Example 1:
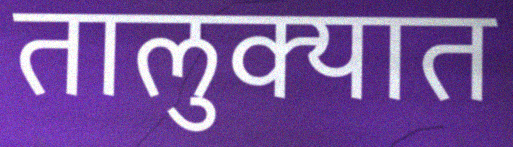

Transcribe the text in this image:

तालुक्यात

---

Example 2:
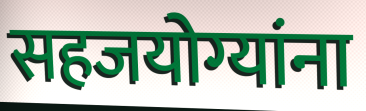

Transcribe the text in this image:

सहजयोग्यांना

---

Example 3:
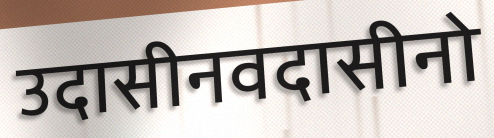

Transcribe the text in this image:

उदासीनवदासीनो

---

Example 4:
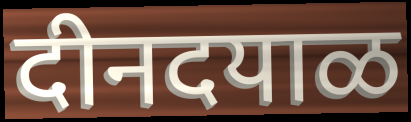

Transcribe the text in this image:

दीनदयाळ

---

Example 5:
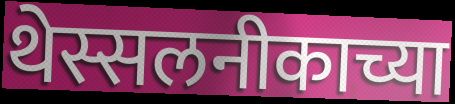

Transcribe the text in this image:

थेस्सलनीकाच्या